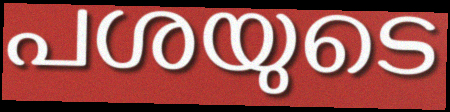
പശയുടെ